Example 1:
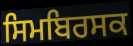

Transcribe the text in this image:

ਸਿਮਬਿਰਸਕ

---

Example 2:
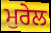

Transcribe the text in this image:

ਮੁਰੇਲ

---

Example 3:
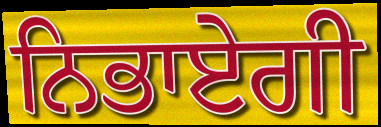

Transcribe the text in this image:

ਨਿਭਾਏਗੀ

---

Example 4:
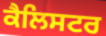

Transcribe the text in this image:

ਕੈਲਿਸਟਰ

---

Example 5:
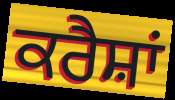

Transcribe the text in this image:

ਕਰੈਸ਼ਾਂ